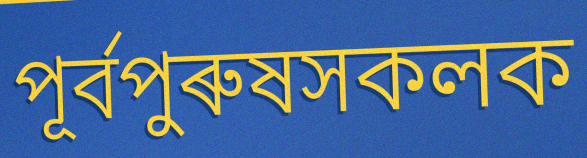
পূৰ্বপুৰুষসকলক